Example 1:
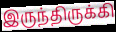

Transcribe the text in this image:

இருந்திருக்கி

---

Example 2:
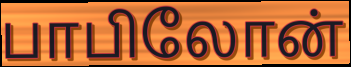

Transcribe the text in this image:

பாபிலோன்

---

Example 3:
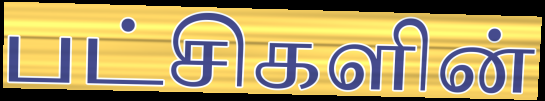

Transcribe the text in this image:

பட்சிகளின்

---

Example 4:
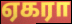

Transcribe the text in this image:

ஏகரா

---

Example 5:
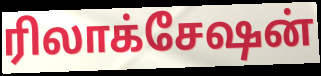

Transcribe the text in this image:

ரிலாக்சேஷன்